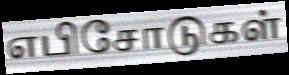
எபிசோடுகள்